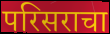
परिसराचा